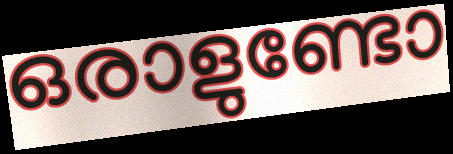
ഒരാളുണ്ടോ